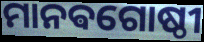
ମାନଵଗୋଷ୍ଠୀ